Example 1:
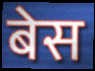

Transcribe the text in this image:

बेस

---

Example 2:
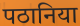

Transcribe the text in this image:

पठानिया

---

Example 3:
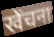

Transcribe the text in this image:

खेंचना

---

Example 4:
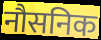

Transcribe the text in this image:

नौसनिक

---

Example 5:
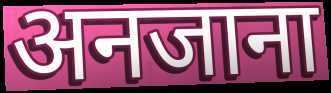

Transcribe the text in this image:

अनजाना